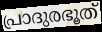
പ്രാദുരഭൂത്